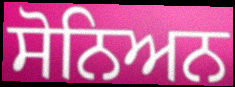
ਸੋਨਿਅਨ